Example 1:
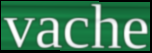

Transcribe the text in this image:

vache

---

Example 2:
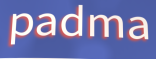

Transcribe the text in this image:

padma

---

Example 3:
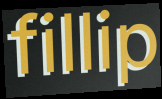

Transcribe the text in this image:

fillip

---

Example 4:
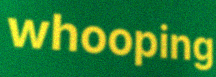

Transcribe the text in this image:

whooping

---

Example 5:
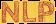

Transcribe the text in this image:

NLP